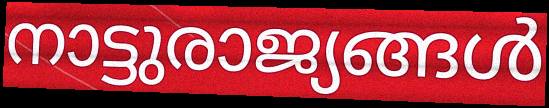
നാട്ടുരാജ്യങ്ങൾ